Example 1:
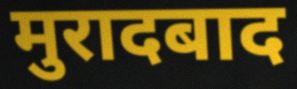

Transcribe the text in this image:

मुरादबाद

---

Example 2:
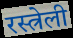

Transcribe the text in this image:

रस्त्रेली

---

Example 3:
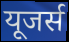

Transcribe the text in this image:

यूजर्स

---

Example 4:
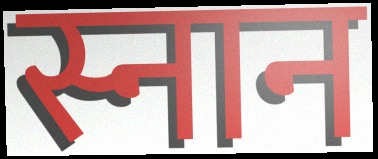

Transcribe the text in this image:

स्नान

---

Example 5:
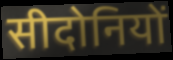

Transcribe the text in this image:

सीदोनियों